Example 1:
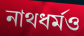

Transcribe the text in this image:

নাথধর্মও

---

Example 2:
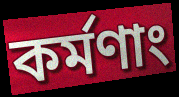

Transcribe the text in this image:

কর্মণাং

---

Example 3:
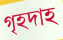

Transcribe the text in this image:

গৃহদাহ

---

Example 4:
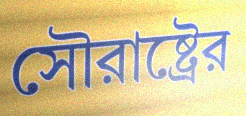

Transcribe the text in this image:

সৌরাষ্ট্রের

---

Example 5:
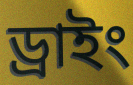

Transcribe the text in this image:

ড্রাইং